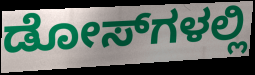
ಡೋಸ್‌ಗಳಲ್ಲಿ